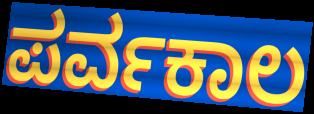
ಪರ್ವಕಾಲ